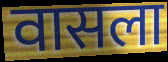
वासला